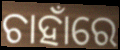
ଚାହାଁରେ